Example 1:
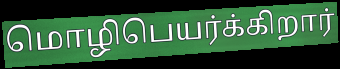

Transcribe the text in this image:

மொழிபெயர்க்கிறார்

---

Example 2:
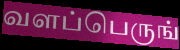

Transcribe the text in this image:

வளப்பெருங்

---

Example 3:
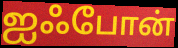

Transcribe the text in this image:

ஐஃபோன்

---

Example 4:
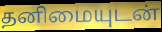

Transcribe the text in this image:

தனிமையுடன்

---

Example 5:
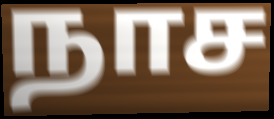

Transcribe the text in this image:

நாச